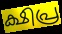
ക്ഷിപ്ര